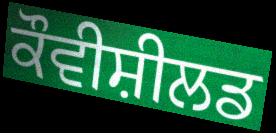
ਕੌਵੀਸ਼ੀਲਡ